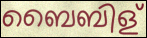
ബൈബിള്